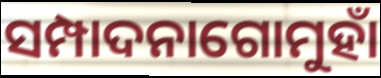
ସମ୍ପାଦନାଗୋମୁହାଁ